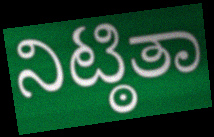
ನಿಟ್ಠಿತಾ